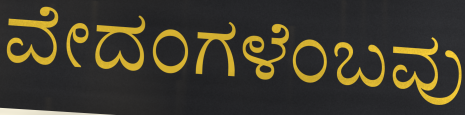
ವೇದಂಗಳೆಂಬವು